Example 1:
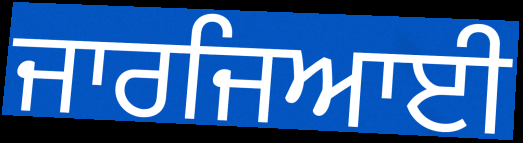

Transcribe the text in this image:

ਜਾਰਜਿਆਈ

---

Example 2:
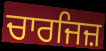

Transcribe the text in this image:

ਚਾਰਜਿਜ਼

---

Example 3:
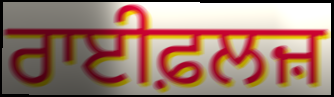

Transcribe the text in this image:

ਰਾਈਫ਼ਲਜ਼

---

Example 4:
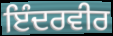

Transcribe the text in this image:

ਇੰਦਰਵੀਰ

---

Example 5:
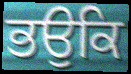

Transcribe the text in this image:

ਭਉਕਿ